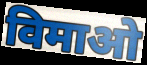
विमाओ